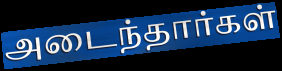
அடைந்தார்கள்